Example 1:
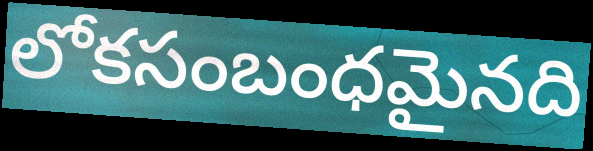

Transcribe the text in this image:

లోకసంబంధమైనది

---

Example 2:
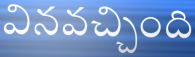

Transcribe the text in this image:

వినవచ్చింది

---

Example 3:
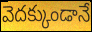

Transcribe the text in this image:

వెదక్కుండానే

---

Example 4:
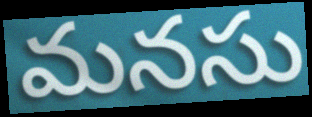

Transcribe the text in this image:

మనసు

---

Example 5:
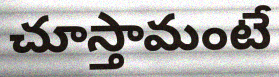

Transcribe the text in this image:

చూస్తామంటే